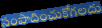
సంపాదించుకోగలదు